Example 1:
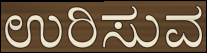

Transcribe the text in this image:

ಉರಿಸುವ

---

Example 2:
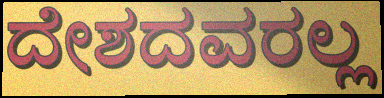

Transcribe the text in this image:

ದೇಶದವರಲ್ಲ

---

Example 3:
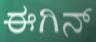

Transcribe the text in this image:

ಈಗಿನ್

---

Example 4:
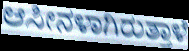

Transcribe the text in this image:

ಆಸೀನಳಾಗಿರುತ್ತಾಳೆ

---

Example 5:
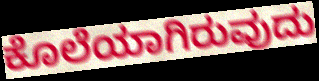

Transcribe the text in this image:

ಕೊಲೆಯಾಗಿರುವುದು